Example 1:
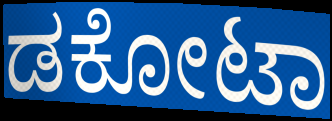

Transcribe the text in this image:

ಡಕೋಟಾ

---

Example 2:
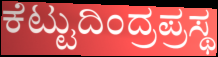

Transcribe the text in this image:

ಕೆಟ್ಟುದಿಂದ್ರಪ್ರಸ್ಥ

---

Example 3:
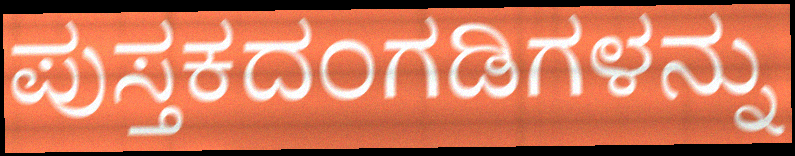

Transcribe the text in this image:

ಪುಸ್ತಕದಂಗಡಿಗಳನ್ನು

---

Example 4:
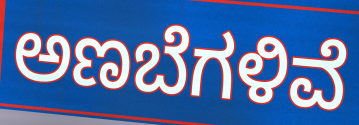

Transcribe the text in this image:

ಅಣಬೆಗಳಿವೆ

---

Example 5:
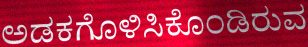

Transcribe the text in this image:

ಅಡಕಗೊಳಿಸಿಕೊಂಡಿರುವ